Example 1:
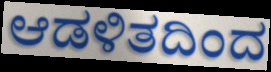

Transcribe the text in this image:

ಆಡಳಿತದಿಂದ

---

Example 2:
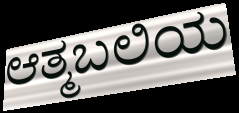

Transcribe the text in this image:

ಆತ್ಮಬಲಿಯ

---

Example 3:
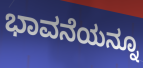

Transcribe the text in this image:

ಭಾವನೆಯನ್ನೂ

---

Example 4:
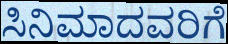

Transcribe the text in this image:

ಸಿನಿಮಾದವರಿಗೆ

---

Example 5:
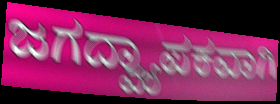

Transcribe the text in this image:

ಜಗದ್ವ್ಯಾಪಕವಾಗಿ